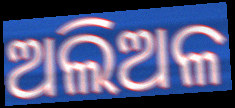
ଅଲିଅଳ